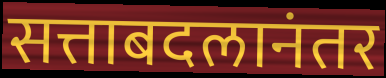
सत्ताबदलानंतर